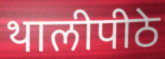
थालीपीठे